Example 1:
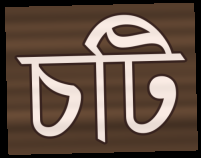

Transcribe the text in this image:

চটি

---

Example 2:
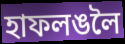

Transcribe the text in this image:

হাফলঙলৈ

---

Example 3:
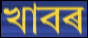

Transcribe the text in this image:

খাবৰ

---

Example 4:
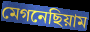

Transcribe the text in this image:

মেগনেছিয়াম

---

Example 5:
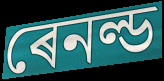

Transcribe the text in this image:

ৰেনল্ড